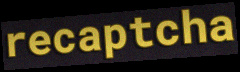
recaptcha